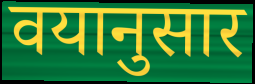
वयानुसार